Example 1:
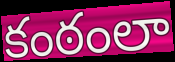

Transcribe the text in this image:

కంఠంలా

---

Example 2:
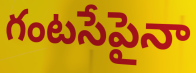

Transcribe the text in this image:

గంటసేపైనా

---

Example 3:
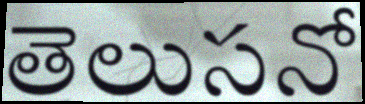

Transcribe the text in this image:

తెలుసనో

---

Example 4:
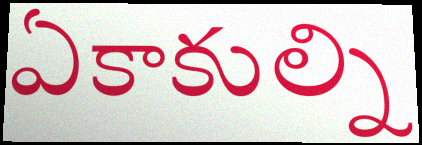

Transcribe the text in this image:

ఏకాకుల్ని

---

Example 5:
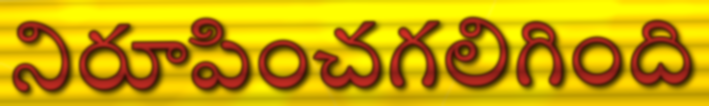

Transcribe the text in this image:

నిరూపించగలిగింది